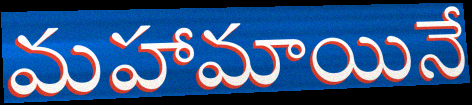
మహామాయినే